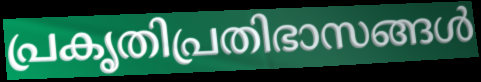
പ്രകൃതിപ്രതിഭാസങ്ങൾ